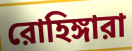
রোহিঙ্গারা